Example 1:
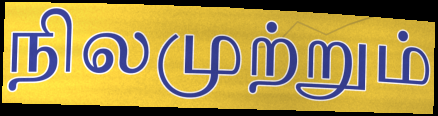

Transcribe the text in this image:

நிலமுற்றும்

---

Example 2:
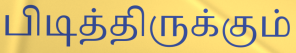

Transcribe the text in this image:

பிடித்திருக்கும்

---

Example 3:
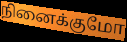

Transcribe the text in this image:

நினைக்குமோ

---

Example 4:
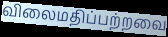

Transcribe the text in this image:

விலைமதிப்பற்றவை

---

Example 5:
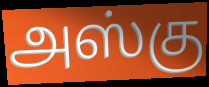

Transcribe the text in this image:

அஸ்கு